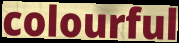
colourful